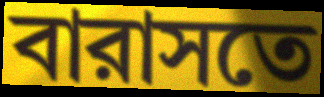
বারাসতে